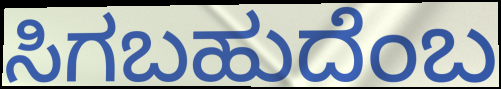
ಸಿಗಬಹುದೆಂಬ